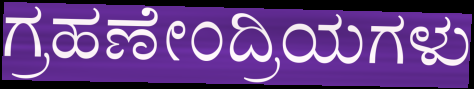
ಗ್ರಹಣೇಂದ್ರಿಯಗಳು